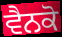
ਵੈਨਕੋ